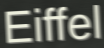
Eiffel